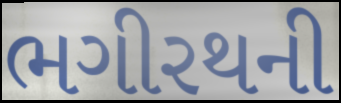
ભગીરથની